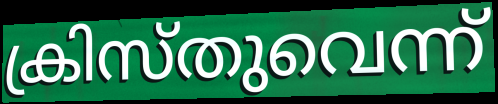
ക്രിസ്തുവെന്ന്